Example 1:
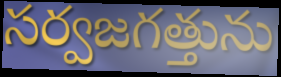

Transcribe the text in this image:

సర్వజగత్తును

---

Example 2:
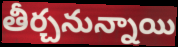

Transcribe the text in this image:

తీర్చనున్నాయి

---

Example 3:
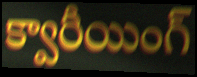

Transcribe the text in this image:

క్వారీయింగ్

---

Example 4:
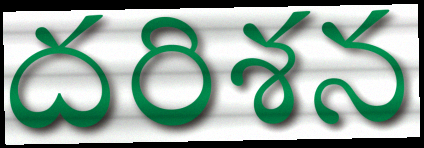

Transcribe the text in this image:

దరిశన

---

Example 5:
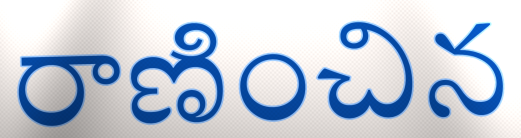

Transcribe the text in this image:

రాణించిన